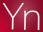
Yn